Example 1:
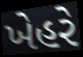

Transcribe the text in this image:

ખેહરે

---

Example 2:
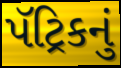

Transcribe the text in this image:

પૅટ્રિકનું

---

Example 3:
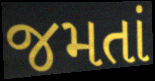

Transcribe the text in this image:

જમતાં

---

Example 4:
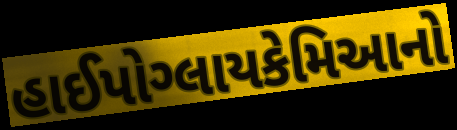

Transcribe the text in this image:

હાઈપોગ્લાયકેમિઆનો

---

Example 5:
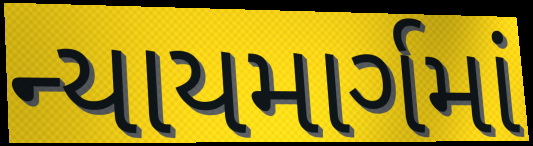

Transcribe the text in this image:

ન્યાયમાર્ગમાં